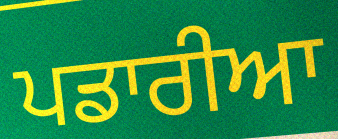
ਪਡਾਰੀਆ